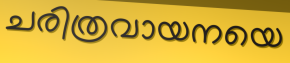
ചരിത്രവായനയെ